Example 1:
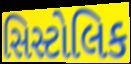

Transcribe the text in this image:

સિસ્ટોલિક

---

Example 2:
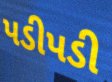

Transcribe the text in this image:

પડીપડી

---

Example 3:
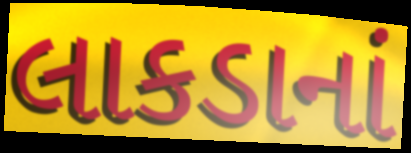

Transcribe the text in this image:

લાકડાનાં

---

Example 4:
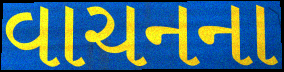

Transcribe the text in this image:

વાચનના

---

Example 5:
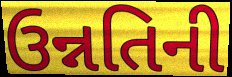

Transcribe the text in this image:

ઉન્નતિની